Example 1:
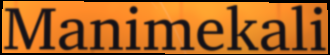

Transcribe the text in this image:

Manimekali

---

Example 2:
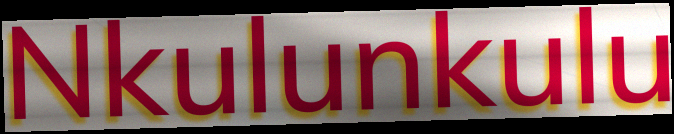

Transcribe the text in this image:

Nkulunkulu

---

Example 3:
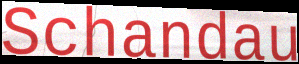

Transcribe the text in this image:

Schandau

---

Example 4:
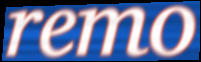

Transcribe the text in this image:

remo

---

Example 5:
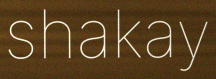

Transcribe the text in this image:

shakay